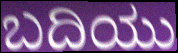
ಬದಿಯು